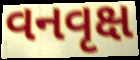
વનવૃક્ષ